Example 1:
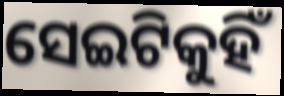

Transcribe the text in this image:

ସେଇଟିକୁହିଁ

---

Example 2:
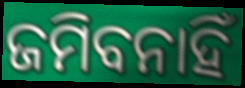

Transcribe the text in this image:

ଜମିବନାହିଁ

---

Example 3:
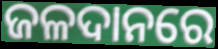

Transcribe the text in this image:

ଜଳଦାନରେ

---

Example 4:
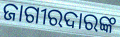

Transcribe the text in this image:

ଜାଗୀରଦାରଙ୍କ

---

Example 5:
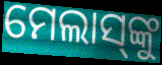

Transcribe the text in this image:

ମେଲାସ୍‌ଙ୍କୁ